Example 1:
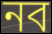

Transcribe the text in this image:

নব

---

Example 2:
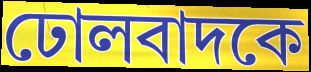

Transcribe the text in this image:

ঢোলবাদকে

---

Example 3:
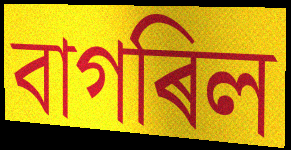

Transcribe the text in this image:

বাগৰিল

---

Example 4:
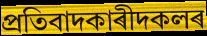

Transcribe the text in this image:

প্ৰতিবাদকাৰীদকলৰ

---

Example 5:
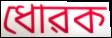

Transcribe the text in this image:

ধোৱক